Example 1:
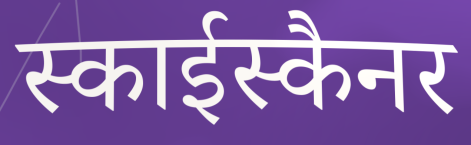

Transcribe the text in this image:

स्काईस्कैनर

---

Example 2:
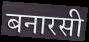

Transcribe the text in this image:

बनारसी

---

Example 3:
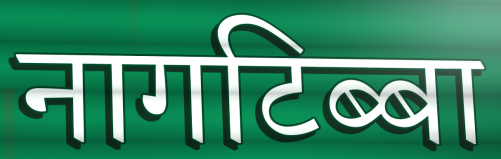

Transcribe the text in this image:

नागटिब्बा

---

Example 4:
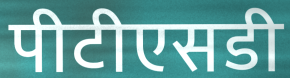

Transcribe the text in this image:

पीटीएसडी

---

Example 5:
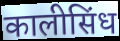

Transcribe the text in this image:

कालीसिंध